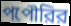
পপৌরির